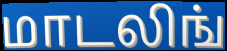
மாடலிங்